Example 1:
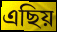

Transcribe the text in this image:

এছিয়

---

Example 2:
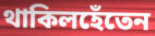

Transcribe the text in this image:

থাকিলহেঁতেন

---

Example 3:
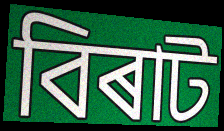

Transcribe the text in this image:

বিৰাট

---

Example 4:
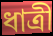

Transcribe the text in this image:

ধাত্ৰী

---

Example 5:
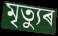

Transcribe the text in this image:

মৃত্যুৰ